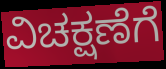
ವಿಚಕ್ಷಣೆಗೆ